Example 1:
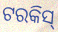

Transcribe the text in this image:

ଟରକିସ୍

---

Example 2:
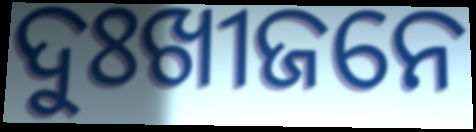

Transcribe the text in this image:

ଦୁଃଖୀଜନେ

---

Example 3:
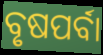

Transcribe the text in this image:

ବୃଷପର୍ବା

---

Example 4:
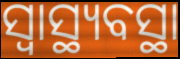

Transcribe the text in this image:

ସ୍ୱାସ୍ଥ୍ୟବସ୍ଥା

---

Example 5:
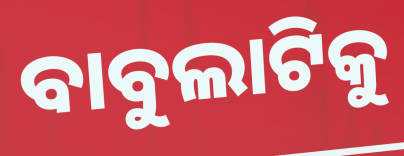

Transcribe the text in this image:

ବାବୁଲାଟିକୁ